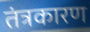
तंत्रकारण